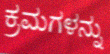
ಕ್ರಮಗಳನ್ನು